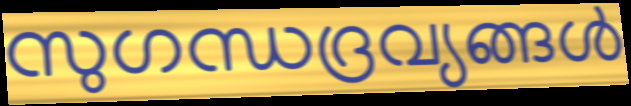
സുഗന്ധദ്രവ്യങ്ങൾ